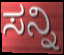
ಸನ್ನಿ